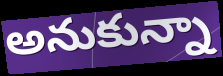
అనుకున్నా